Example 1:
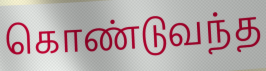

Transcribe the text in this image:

கொண்டுவந்த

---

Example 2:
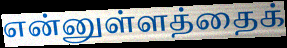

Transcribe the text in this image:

என்னுள்ளத்தைக்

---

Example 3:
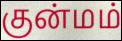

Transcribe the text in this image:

குன்மம்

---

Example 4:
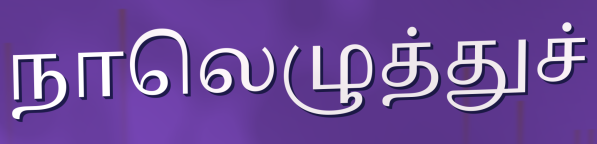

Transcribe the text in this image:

நாலெழுத்துச்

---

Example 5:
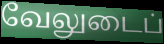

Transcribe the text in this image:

வேலுடைப்